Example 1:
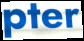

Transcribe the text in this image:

pter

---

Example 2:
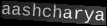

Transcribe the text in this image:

aashcharya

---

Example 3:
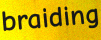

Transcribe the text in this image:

braiding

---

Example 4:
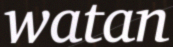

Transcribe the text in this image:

watan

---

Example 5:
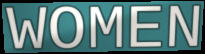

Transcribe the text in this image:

WOMEN